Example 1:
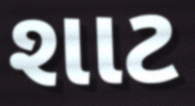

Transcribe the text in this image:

શાટ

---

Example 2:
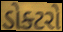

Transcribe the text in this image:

ડોક્ટરો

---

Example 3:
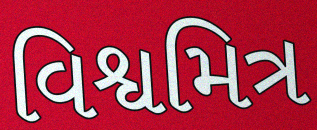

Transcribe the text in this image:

વિશ્વમિત્ર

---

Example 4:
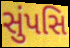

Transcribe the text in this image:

સુંપસિ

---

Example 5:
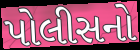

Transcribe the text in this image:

પોલીસનો